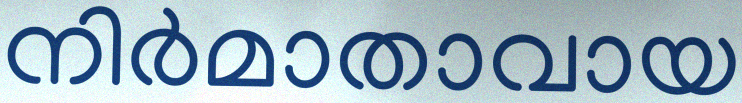
നിർമാതാവായ